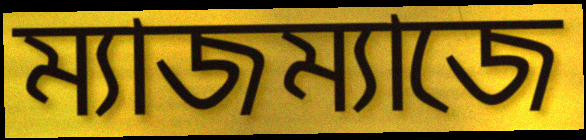
ম্যাজম্যাজে